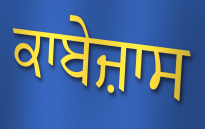
ਕਾਬੇਜ਼ਾਸ